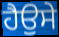
ਹੈਉਸੇ